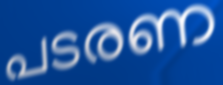
പടരണ